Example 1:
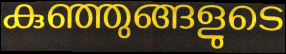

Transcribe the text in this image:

കുഞ്ഞുങ്ങളുടെ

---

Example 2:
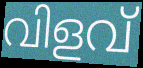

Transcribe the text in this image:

വിളവ്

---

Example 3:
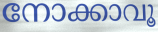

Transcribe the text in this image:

നോക്കാവൂ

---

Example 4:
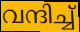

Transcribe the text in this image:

വന്ദിച്ച്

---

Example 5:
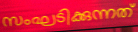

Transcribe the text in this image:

സംഘടിക്കുന്നത്